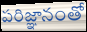
పరిజ్ఞానంతో